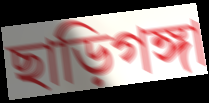
ছাড়িগঙ্গা